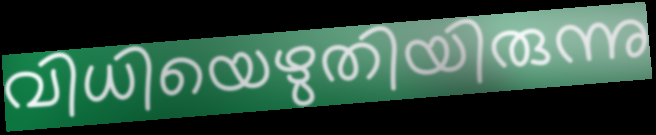
വിധിയെഴുതിയിരുന്നു